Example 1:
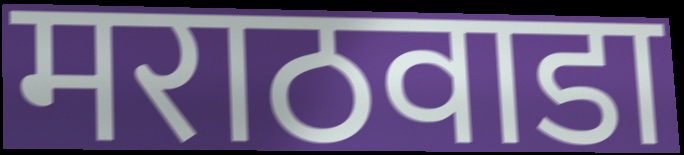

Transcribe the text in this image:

मराठवाडा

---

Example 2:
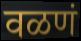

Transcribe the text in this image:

वळणं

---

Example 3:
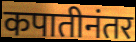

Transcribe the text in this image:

कपातीनंतर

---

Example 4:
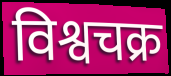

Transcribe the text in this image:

विश्वचक्र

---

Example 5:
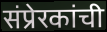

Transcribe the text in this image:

संप्रेरकांची